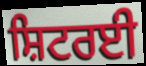
ਸ਼ਿਟਰਈ